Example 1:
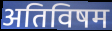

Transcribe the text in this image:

अतिविषम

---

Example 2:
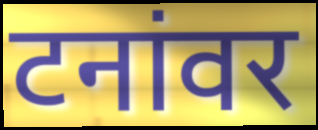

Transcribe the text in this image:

टनांवर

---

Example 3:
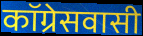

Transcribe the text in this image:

कॉग्रेसवासी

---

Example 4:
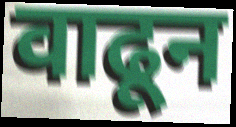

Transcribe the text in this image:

वाढून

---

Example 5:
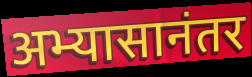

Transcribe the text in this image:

अभ्यासानंतर